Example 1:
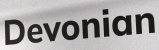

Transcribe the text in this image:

Devonian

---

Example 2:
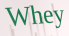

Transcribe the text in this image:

Whey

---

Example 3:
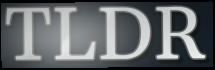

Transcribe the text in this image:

TLDR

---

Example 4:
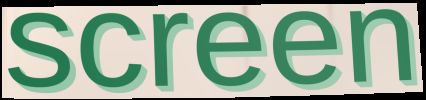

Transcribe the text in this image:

screen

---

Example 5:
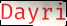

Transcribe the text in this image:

Dayri